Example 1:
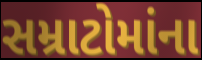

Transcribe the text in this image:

સમ્રાટોમાંના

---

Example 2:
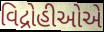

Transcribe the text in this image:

વિદ્રોહીઓએ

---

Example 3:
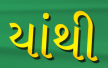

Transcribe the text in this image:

યાંથી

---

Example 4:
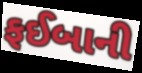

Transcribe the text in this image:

ફઈબાની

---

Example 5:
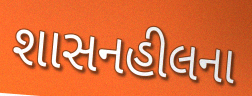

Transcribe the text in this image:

શાસનહીલના